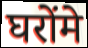
घरोंमे